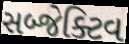
સબ્જેક્ટિવ